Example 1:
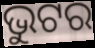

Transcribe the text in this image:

ଭୁଟର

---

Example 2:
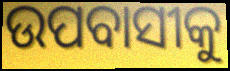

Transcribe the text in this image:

ଉପବାସୀକୁ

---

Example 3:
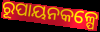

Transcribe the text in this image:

ରୂପାୟନକଳ୍ପେ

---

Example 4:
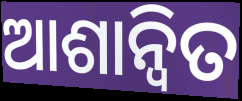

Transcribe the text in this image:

ଆଶାନ୍ବିତ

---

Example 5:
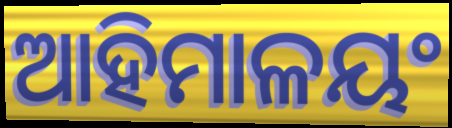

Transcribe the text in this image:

ଆହିମାଳୟଂ